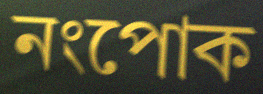
নংপোক